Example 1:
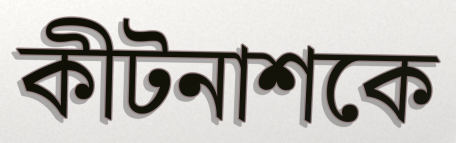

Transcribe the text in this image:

কীটনাশকে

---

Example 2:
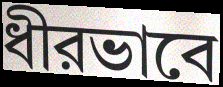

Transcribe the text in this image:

ধীরভাবে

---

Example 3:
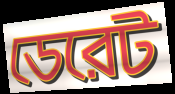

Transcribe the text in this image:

ডেরেট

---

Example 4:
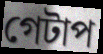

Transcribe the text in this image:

গেটাপ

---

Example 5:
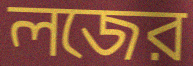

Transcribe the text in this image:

লজের